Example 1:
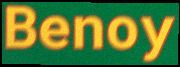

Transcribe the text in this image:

Benoy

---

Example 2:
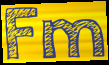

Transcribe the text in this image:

Fm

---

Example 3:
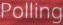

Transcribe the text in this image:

Polling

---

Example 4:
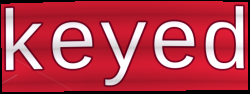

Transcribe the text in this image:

keyed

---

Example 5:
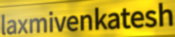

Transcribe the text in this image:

laxmivenkatesh